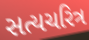
સત્યચરિત્ર